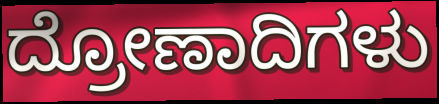
ದ್ರೋಣಾದಿಗಳು